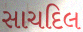
સાચદિલ